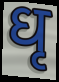
धृ